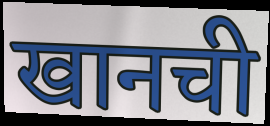
खानची